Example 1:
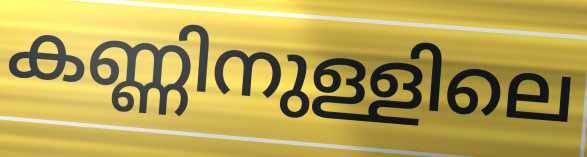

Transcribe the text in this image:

കണ്ണിനുള്ളിലെ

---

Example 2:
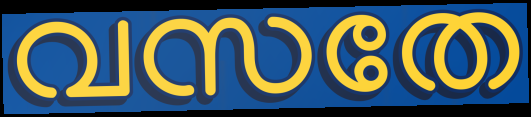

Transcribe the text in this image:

വസതേ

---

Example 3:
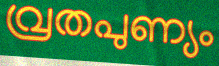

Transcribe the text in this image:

വ്രതപുണ്യം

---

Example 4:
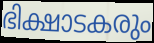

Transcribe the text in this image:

ഭിക്ഷാടകരും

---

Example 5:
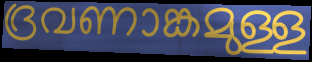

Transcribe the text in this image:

ദ്രവണാങ്കമുള്ള